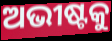
ଅଭୀଷ୍ଟକୁ